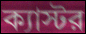
ক্যাস্টর